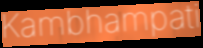
Kambhampati